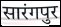
सारंगपुर